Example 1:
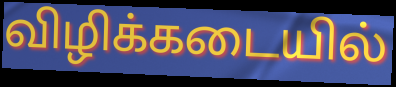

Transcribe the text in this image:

விழிக்கடையில்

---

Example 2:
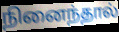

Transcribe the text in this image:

நினைந்தால்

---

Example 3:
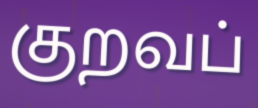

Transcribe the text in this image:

குறவப்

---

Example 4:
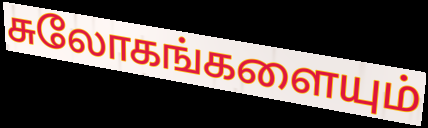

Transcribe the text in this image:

சுலோகங்களையும்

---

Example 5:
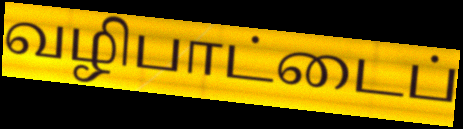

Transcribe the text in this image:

வழிபாட்டைப்